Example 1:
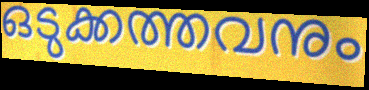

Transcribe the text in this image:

ഒടുക്കത്തവനും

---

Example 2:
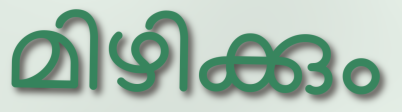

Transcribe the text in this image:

മിഴിക്കും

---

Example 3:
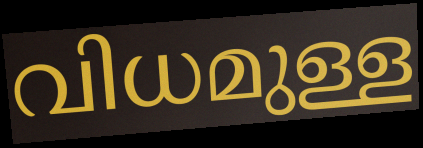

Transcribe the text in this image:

വിധമുള്ള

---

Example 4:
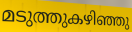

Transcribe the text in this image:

മടുത്തുകഴിഞ്ഞു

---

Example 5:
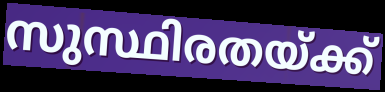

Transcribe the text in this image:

സുസ്ഥിരതയ്ക്ക്